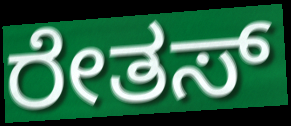
ರೇತಸ್